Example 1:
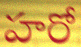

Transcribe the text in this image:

హరో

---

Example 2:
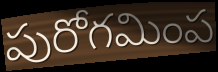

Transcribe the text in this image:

పురోగమింప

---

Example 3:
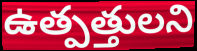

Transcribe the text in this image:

ఉత్పత్తులని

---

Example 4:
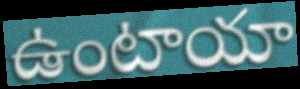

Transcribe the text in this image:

ఉంటాయా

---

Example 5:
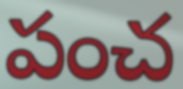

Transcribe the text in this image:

పంచ